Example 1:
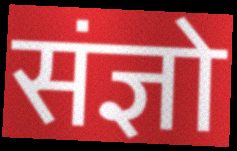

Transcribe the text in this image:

संज्ञो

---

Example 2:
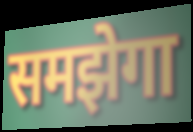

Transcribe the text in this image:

समझेगा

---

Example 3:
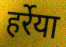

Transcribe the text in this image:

हर्रेया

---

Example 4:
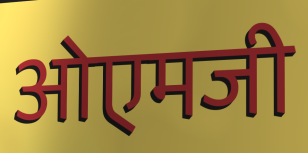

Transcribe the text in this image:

ओएमजी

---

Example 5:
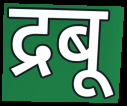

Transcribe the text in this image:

द्रबू